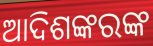
ଆଦିଶଙ୍କରଙ୍କ